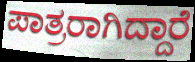
ಪಾತ್ರರಾಗಿದ್ದಾರೆ